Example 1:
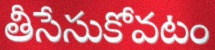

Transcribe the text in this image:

తీసేసుకోవటం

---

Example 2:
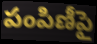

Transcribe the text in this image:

పంపిణీపై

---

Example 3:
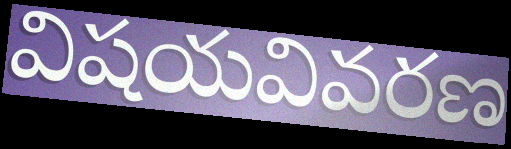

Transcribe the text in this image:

విషయవివరణ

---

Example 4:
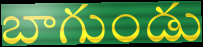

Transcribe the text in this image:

బాగుండు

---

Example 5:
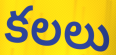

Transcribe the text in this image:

కలలు